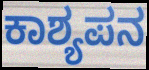
ಕಾಶ್ಯಪನ